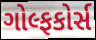
ગોલ્ફકોર્સ